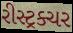
રીસ્ટ્રક્ચર